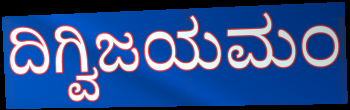
ದಿಗ್ವಿಜಯಮಂ